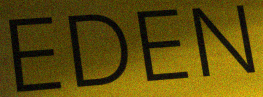
EDEN